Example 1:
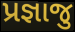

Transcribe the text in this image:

પ્રજ્ઞાજુ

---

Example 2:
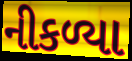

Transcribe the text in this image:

નીકળ્યા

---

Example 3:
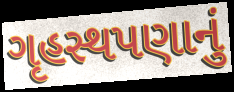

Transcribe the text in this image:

ગૃહસ્થપણાનું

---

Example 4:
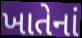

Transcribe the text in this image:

ખાતેનાં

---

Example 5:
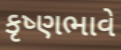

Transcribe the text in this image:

કૃષ્ણભાવે